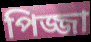
পিজ্জা